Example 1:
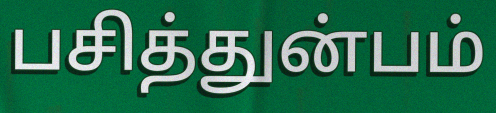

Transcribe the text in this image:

பசித்துன்பம்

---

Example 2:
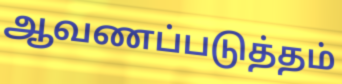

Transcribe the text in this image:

ஆவணப்படுத்தம்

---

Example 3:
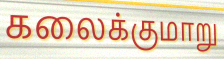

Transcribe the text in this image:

கலைக்குமாறு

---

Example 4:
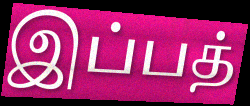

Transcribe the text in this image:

இப்பத்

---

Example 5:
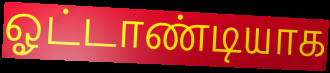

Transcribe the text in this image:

ஓட்டாண்டியாக